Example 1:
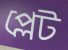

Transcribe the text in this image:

প্লেট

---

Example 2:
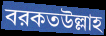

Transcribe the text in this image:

বরকতউল্লাহ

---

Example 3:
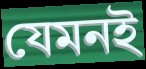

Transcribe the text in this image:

যেমনই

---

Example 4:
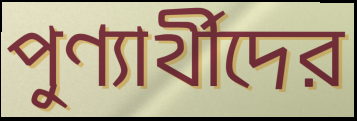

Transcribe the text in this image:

পুণ্যার্থীদের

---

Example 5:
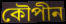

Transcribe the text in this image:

কৌপীন